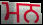
ਮਨ